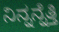
ನಿನ್ನನ್ನೆತ್ತಿ